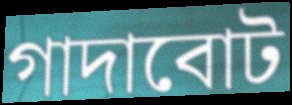
গাদাবোট